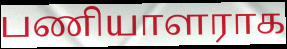
பணியாளராக